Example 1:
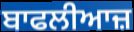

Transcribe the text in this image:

ਬਾਫਲੀਆਜ਼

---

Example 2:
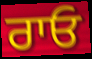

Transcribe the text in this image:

ਰਾਓ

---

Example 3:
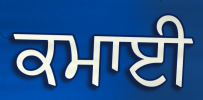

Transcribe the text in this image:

ਕਮਾਈ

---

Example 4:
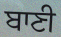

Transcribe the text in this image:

ਬਾਣੀ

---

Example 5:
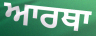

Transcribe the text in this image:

ਆਰਥਾ